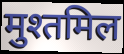
मुश्तमिल